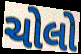
ચોલો